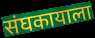
संघकायाला